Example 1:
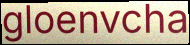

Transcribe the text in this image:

gloenvcha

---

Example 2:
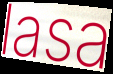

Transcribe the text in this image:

lasa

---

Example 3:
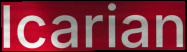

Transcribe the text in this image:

Icarian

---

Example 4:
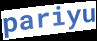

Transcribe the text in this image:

pariyu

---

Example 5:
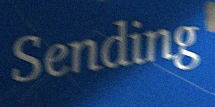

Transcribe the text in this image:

Sending